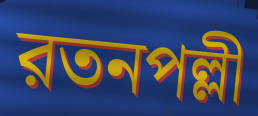
রতনপল্লী